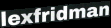
lexfridman